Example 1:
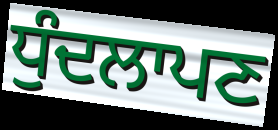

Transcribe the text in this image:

ਧੁੰਦਲਾਪਣ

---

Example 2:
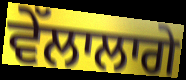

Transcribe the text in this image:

ਵੇੱਲਾਲਾਗੇ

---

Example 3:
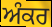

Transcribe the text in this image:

ਅੰਕਰ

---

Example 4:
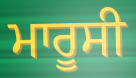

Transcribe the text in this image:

ਮਾਰੂਸੀ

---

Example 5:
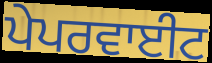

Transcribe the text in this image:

ਪੇਪਰਵਾਈਟ